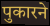
पुकारने